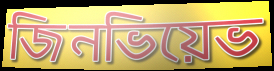
জিনভিয়েভ